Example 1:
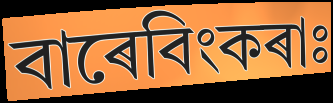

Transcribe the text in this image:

বাৰেবিংকৰাঃ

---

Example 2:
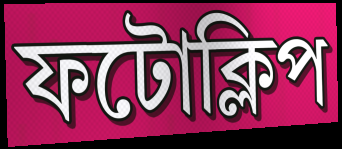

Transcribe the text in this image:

ফটোক্লিপ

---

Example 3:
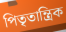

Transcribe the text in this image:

পিতৃতান্ত্ৰিক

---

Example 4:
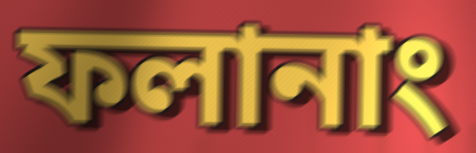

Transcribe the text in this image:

ফলানাং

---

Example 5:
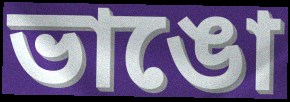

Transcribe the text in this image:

ভাঙো